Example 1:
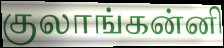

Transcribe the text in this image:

குலாங்கன்னி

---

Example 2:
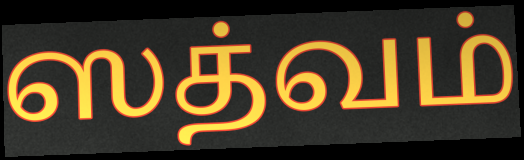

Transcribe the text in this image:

ஸத்வம்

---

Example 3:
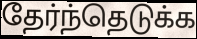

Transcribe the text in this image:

தேர்ந்தெடுக்க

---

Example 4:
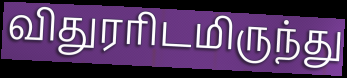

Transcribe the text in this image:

விதுரரிடமிருந்து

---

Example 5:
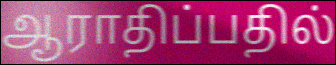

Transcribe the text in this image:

ஆராதிப்பதில்